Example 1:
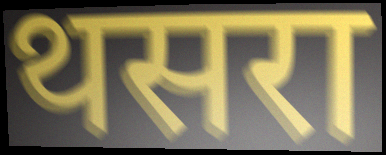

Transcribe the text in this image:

थसरा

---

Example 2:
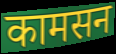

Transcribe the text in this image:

कामसन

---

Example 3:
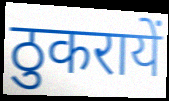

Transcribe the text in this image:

ठुकरायें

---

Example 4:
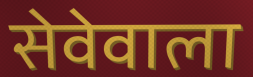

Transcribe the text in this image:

सेवेवाला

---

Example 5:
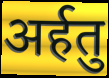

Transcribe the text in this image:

अर्हतु